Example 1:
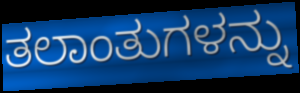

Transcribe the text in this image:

ತಲಾಂತುಗಳನ್ನು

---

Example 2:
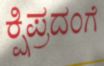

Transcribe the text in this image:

ಕ್ಷಿಪ್ರದಂಗೆ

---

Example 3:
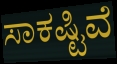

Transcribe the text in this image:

ಸಾಕಷ್ಟಿವೆ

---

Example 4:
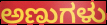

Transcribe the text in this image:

ಅಣುಗಳು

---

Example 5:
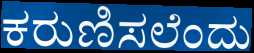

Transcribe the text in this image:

ಕರುಣಿಸಲೆಂದು